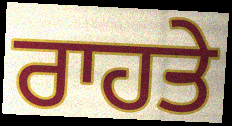
ਰਾਹਤੇ